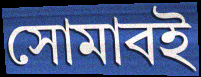
সোমাবই